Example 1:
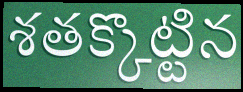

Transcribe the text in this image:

శతక్కొట్టిన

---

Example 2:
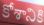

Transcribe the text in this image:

కోశానికి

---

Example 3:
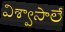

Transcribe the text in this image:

విశ్వాసాలే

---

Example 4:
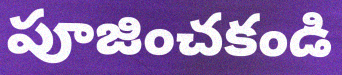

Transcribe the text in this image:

పూజించకండి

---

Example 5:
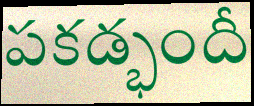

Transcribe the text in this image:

పకడ్భందీ